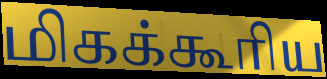
மிகக்கூரிய